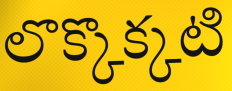
లొక్కొక్కటి